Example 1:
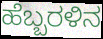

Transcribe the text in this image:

ಹೆಬ್ಬರಳಿನ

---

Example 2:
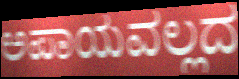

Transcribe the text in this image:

ಅಪಾಯವಲ್ಲದ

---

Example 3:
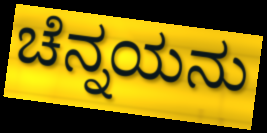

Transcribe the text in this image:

ಚೆನ್ನಯನು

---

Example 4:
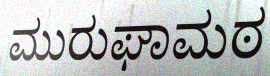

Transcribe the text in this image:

ಮುರುಘಾಮಠ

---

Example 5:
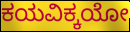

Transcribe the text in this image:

ಕಯವಿಕ್ಕಯೋ